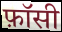
फ़ॉसी